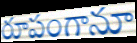
రూపంగానూ